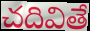
చదివితే